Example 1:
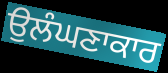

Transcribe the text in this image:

ਉਲੰਘਣਾਕਾਰ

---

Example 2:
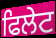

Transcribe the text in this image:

ਫਿਲੇਟ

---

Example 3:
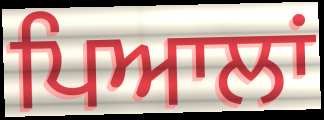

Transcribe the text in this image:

ਪਿਆਲਾਂ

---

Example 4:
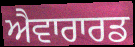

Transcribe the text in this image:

ਐਵਾਰਾਰਡ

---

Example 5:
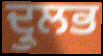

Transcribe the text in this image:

ਦ੍ਰੁਲਭ